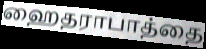
ஹைதராபாத்தை